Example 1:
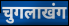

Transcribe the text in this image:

चुगलाखंग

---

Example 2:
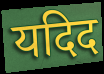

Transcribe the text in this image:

यदिद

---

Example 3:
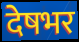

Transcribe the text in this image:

देषभर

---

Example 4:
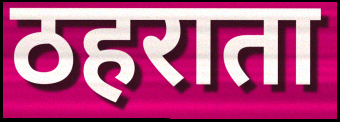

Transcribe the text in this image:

ठहराता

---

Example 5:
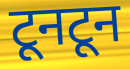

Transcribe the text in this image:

टूनटून